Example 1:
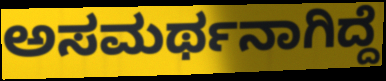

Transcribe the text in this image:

ಅಸಮರ್ಥನಾಗಿದ್ದೆ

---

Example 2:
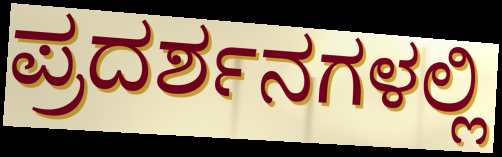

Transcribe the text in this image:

ಪ್ರದರ್ಶನಗಳಲ್ಲಿ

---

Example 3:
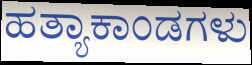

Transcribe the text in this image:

ಹತ್ಯಾಕಾಂಡಗಳು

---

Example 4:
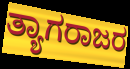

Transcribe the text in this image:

ತ್ಯಾಗರಾಜರ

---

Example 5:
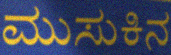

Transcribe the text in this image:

ಮುಸುಕಿನ